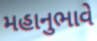
મહાનુભાવે